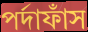
পর্দাফাঁস